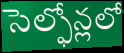
సెల్ఫోన్లలో